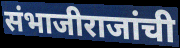
संभाजीराजांची